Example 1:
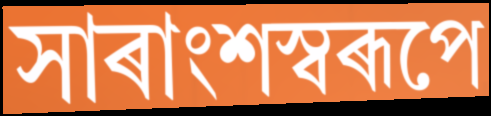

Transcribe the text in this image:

সাৰাংশস্বৰূপে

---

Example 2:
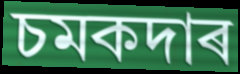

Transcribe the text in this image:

চমকদাৰ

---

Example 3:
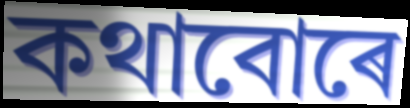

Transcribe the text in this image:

কথাবোৰে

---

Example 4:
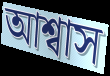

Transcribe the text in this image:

আশ্বাস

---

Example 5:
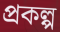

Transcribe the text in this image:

প্ৰকল্প